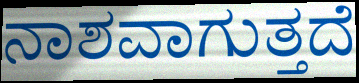
ನಾಶವಾಗುತ್ತದೆ